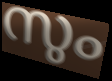
സും